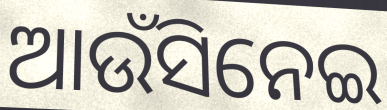
ଆଉଁସିନେଇ